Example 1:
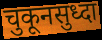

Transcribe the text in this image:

चुकूनसुध्दा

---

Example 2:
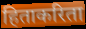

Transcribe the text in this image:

हिताकरिता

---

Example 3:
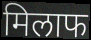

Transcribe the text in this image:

मिलाफ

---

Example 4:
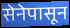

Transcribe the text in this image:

सेनेपासून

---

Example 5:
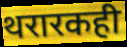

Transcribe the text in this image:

थरारकही